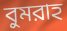
বুমরাহ